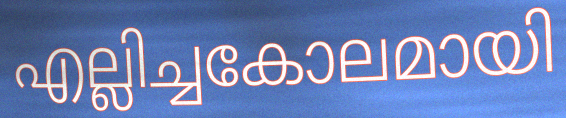
എല്ലിച്ചകോലമായി